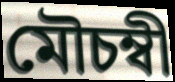
মৌচম্বী